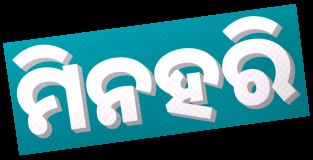
ମିନହରି